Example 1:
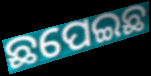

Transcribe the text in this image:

ଛପେଇଛ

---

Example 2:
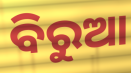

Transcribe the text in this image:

ବିରୁଆ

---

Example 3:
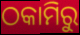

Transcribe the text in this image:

ଠକାମିରୁ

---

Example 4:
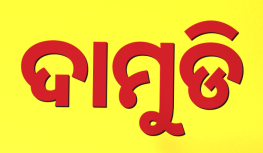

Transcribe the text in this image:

ଦାମୁଡି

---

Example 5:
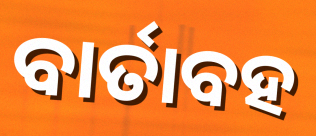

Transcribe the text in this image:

ବାର୍ତାବହ